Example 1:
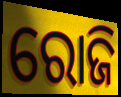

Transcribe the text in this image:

ରୋଜି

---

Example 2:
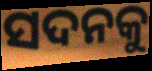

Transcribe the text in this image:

ସଦନକୁ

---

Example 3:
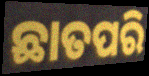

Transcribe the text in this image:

ଛାତପରି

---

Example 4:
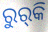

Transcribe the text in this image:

ରୁର୍‍କି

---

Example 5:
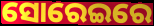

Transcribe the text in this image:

ସୋରେଇରେ